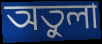
অতুলা